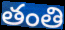
తంతి